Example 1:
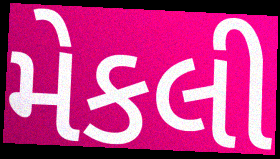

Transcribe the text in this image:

મેકલી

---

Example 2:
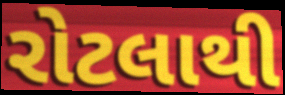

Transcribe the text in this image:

રોટલાથી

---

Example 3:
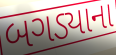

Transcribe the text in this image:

બગડ્યાના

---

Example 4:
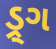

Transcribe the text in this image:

ડ્ર્ગ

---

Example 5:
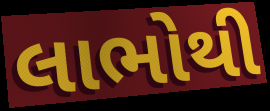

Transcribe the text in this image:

લાભોથી